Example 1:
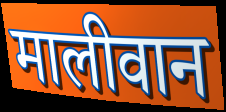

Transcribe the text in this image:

मालीवान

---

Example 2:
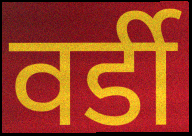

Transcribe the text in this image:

वर्डी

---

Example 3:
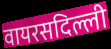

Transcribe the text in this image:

वायरसदिल्ली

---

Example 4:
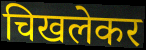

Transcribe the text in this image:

चिखलेकर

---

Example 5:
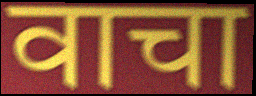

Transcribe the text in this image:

वाचा